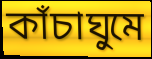
কাঁচাঘুমে